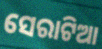
ସେରାଟିଆ